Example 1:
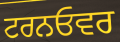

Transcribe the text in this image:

ਟਰਨਓਵਰ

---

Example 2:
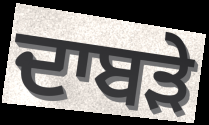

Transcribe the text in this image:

ਦਾਬੜੇ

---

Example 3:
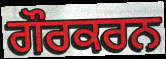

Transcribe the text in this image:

ਗੌਰਕਰਨ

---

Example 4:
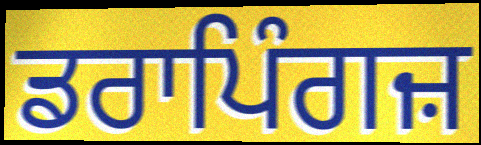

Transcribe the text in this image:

ਡਰਾਪਿੰਗਜ਼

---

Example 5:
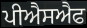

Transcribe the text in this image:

ਪੀਐਸਐਫ